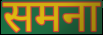
समना